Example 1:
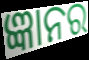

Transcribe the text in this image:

ଜ୍ଞାନର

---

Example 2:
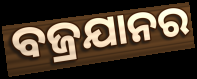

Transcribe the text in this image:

ବଜ୍ରଯାନର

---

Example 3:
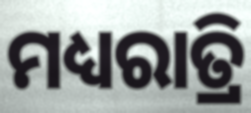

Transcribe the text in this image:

ମଧ୍ୟରାତ୍ରି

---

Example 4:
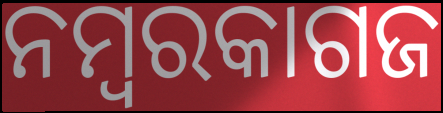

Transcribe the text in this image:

ନମ୍ବରକାଗଜ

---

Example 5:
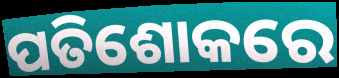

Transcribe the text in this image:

ପତିଶୋକରେ